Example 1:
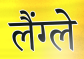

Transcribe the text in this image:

लैंग्ले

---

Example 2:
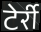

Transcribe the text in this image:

टेर्री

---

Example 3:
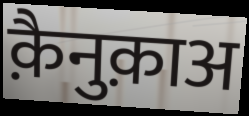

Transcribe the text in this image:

क़ैनुक़ाअ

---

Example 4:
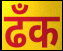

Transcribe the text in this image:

ढँक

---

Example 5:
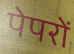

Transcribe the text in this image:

पेपरों